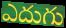
ఎదుగు